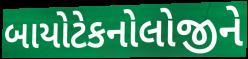
બાયોટેકનોલોજીને